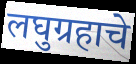
लघुग्रहाचे